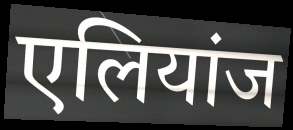
एलियांज